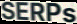
SERPs